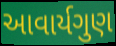
આવાર્યગુણ